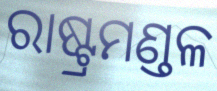
ରାଷ୍ଟ୍ରମଣ୍ଡଳ